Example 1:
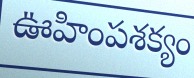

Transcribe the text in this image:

ఊహింపశక్యం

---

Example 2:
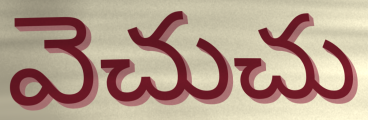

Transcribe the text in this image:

వెచుచు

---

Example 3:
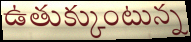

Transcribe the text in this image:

ఉతుక్కుంటున్న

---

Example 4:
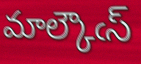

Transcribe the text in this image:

మాల్కౌఁస్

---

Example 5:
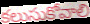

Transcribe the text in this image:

కలుసుకోవాలి